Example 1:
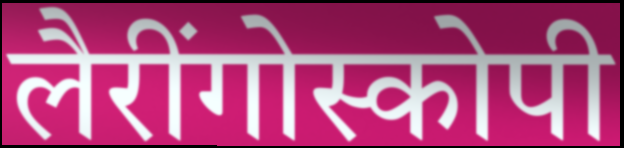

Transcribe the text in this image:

लैरींगोस्कोपी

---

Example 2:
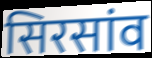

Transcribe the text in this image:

सिरसांव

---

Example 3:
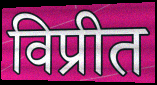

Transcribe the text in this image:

विप्रीत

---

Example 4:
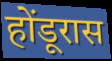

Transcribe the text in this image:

होंडूरास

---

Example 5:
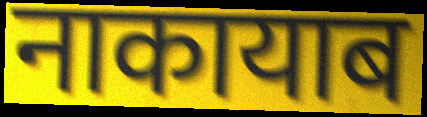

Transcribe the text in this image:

नाकायाब